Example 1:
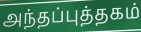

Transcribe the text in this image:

அந்தப்புத்தகம்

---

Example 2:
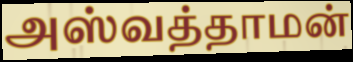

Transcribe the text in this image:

அஸ்வத்தாமன்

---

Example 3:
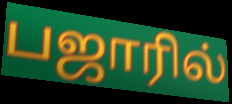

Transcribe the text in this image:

பஜாரில்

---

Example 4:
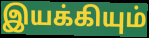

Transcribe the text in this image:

இயக்கியும்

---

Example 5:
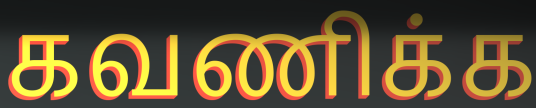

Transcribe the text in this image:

கவணிக்க